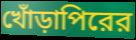
খোঁড়াপিরের